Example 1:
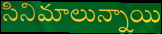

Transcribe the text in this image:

సినిమాలున్నాయి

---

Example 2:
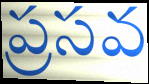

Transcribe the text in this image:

ప్రసవ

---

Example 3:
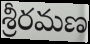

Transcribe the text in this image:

శ్రీరమణ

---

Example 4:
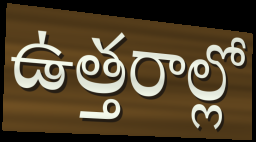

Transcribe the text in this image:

ఉత్తరాల్లో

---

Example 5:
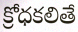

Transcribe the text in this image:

క్రోధకలితే